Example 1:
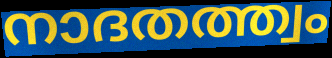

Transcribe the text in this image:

നാദതത്ത്വം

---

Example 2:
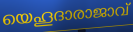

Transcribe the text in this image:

യെഹൂദാരാജാവ്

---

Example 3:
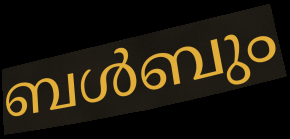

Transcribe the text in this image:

ബൾബും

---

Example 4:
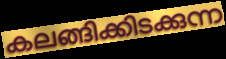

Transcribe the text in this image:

കലങ്ങിക്കിടക്കുന്ന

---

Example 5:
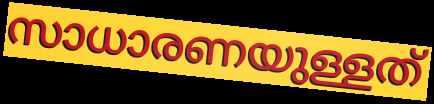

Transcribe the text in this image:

സാധാരണയുള്ളത്